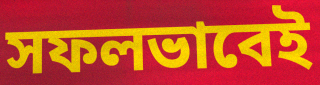
সফলভাবেই